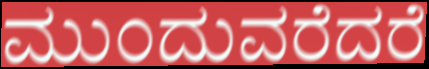
ಮುಂದುವರೆದರೆ